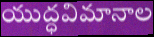
యుద్ధవిమానాల